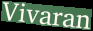
Vivaran